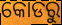
କୋଡରୁ